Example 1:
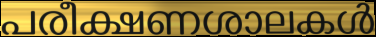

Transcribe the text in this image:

പരീക്ഷണശാലകൾ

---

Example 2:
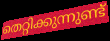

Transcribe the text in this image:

തെറ്റിക്കുന്നുണ്ട്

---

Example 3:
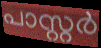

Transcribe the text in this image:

പാസ്റ്റർ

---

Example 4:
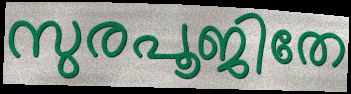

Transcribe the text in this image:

സുരപൂജിതേ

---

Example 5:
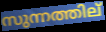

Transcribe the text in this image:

സുന്നത്തില്